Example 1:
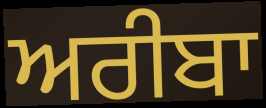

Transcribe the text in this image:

ਅਰੀਬਾ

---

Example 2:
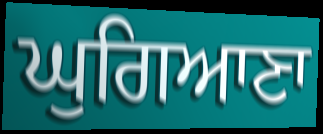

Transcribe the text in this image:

ਘੁਗਿਆਣਾ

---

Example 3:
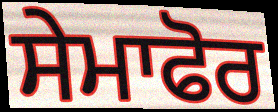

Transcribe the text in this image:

ਸੇਮਾਫੋਰ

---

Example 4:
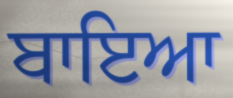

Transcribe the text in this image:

ਬਾਇਆ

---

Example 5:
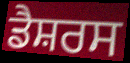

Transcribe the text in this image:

ਡੈਸ਼ਰਸ